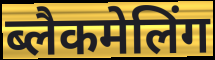
ब्लैकमेलिंग